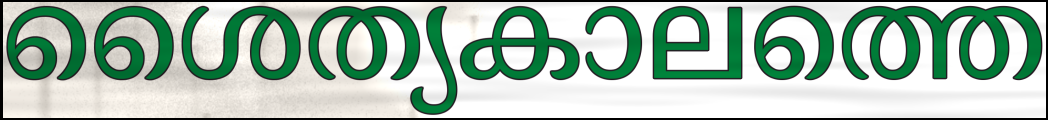
ശൈത്യകാലത്തെ